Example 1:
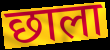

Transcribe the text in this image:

छाला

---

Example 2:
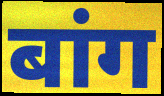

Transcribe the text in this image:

बांग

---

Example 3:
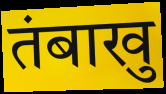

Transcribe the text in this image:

तंबाखु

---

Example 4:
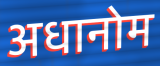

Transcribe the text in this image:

अधानोम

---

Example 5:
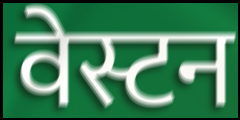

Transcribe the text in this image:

वेस्टन